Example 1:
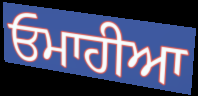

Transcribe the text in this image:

ਓਮਾਹੀਆ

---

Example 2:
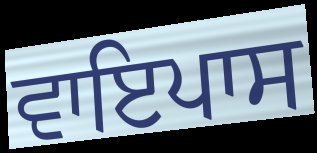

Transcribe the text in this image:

ਵਾਇਪਾਸ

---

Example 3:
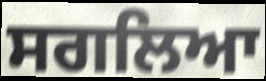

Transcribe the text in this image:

ਸਗਲਿਆ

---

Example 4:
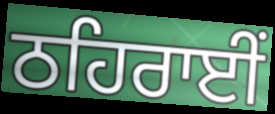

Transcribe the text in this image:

ਠਹਿਰਾਈਂ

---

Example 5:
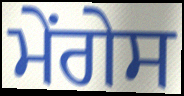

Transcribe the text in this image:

ਮੇਂਗੇਸ